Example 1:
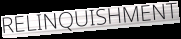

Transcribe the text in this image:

RELINQUISHMENT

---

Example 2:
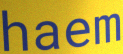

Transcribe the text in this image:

haem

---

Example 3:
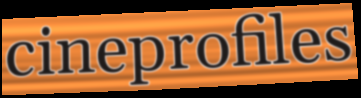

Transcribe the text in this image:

cineprofiles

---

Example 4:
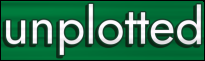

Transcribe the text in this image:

unplotted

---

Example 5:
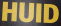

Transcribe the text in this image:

HUID